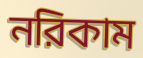
নরিকাম